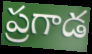
ప్రగాడ